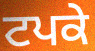
ਟਪਕੇ